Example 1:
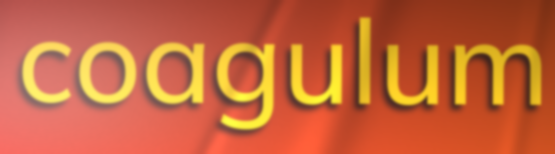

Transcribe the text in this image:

coagulum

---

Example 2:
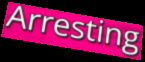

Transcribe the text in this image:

Arresting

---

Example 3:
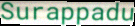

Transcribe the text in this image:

Surappadu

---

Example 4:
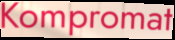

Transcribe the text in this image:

Kompromat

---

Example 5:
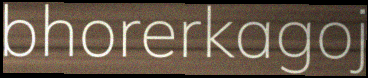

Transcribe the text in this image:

bhorerkagoj